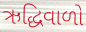
ઋદ્ધિવાળો